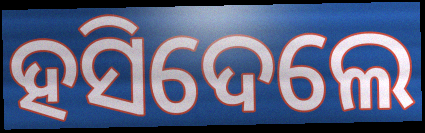
ହସିଦେଲେ